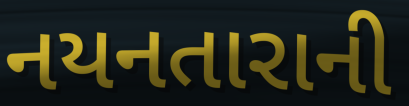
નયનતારાની